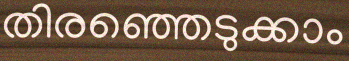
തിരഞ്ഞെടുക്കാം